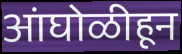
आंघोळीहून